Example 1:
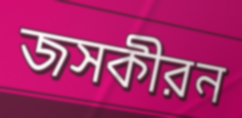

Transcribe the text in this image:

জসকীরন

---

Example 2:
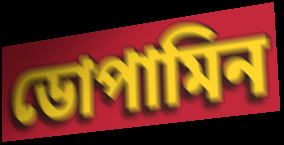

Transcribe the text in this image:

ডোপামিন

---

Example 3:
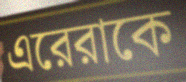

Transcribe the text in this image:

এরেরাকে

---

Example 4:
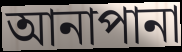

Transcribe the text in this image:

আনাপানা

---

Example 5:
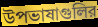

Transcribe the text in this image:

উপভাষাগুলির